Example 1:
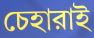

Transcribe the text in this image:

চেহারাই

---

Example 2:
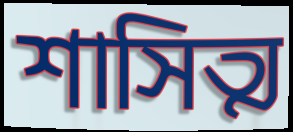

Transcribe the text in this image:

শাসিত্ম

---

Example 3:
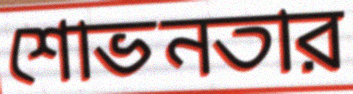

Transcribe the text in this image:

শোভনতার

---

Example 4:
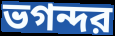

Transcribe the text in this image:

ভগন্দর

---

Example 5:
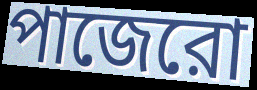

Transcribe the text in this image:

পাজেরো